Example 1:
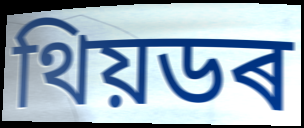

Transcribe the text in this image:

থিয়ডৰ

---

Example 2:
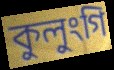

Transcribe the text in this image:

কুলুংগি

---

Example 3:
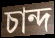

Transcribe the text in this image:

চান্দ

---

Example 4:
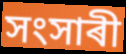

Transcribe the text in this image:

সংসাৰী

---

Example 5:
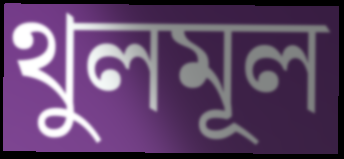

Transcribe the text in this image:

থুলমূল